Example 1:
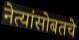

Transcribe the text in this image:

नेत्यांसोबतचे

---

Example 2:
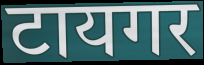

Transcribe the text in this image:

टायगर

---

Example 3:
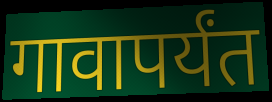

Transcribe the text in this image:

गावापर्यंत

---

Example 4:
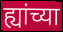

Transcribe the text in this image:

ह्यांच्या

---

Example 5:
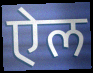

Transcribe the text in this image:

ऐल